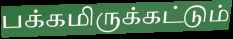
பக்கமிருக்கட்டும்